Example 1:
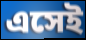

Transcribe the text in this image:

এসেই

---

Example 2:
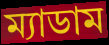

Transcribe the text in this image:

ম্যাডাম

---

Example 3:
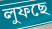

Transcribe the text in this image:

লুফছে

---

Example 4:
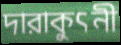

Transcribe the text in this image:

দারাকুৎনী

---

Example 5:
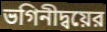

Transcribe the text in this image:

ভগিনীদ্বয়ের